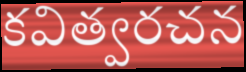
కవిత్వరచన